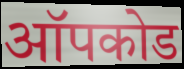
ऑपकोड